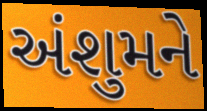
અંશુમને